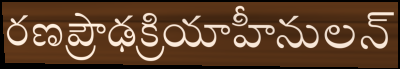
రణప్రౌఢక్రియాహీనులన్